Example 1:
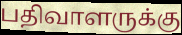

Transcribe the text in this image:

பதிவாளருக்கு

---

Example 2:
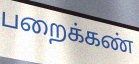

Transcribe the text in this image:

பறைக்கண்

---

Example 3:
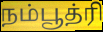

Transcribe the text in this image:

நம்பூத்ரி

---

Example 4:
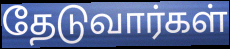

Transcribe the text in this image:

தேடுவார்கள்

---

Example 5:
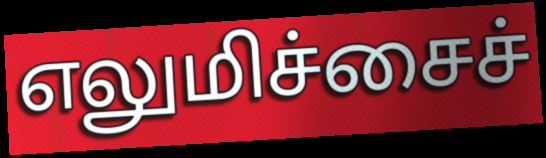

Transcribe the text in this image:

எலுமிச்சைச்